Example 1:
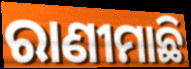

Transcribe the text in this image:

ରାଣୀମାଛି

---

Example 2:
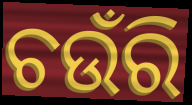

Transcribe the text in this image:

ଚଉଁରି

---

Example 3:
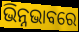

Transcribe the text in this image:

ଭିନ୍ନଭାବରେ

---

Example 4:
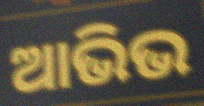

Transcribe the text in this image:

ଆଭିଭ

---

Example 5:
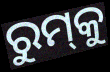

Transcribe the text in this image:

ରୁମ୍‍କୁ